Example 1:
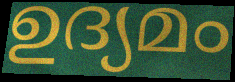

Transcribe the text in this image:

ഉദ്യമം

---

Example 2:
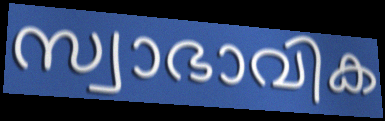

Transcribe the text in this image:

സ്വാഭാവിക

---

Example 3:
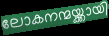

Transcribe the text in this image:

ലോകനന്മയ്ക്കായി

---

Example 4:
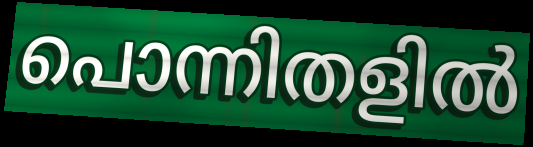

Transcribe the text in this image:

പൊന്നിതളിൽ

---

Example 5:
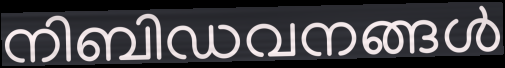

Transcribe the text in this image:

നിബിഡവനങ്ങൾ